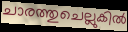
ചാരത്തുചെല്ലുകിൽ